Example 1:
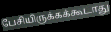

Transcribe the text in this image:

பேசியிருக்கக்கூடாது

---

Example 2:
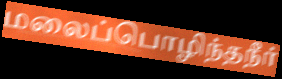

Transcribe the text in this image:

மலைப்பொழிந்தநீர்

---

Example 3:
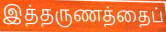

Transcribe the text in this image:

இத்தருணத்தைப்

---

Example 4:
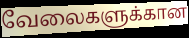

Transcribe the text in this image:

வேலைகளுக்கான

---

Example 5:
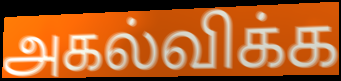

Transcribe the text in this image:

அகல்விக்க